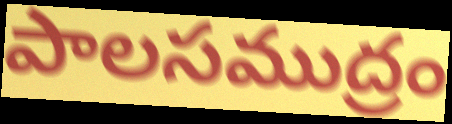
పాలసముద్రం